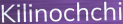
Kilinochchi